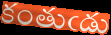
కంతుఁడు